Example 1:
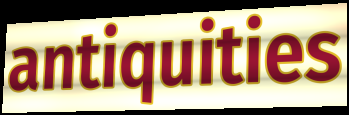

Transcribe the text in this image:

antiquities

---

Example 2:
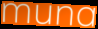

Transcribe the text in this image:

muna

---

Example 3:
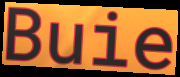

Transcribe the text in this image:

Buie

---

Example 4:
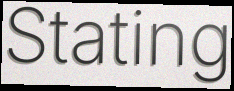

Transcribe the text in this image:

Stating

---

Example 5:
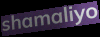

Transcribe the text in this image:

shamaliyo